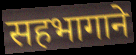
सहभागाने